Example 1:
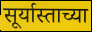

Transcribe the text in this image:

सूर्यास्ताच्या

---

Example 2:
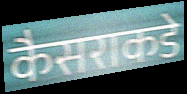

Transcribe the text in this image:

कैसराकडे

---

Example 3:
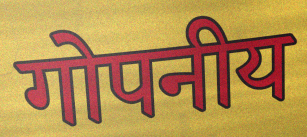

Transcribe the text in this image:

गोपनीय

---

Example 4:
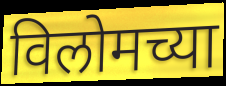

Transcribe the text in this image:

विलोमच्या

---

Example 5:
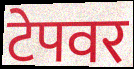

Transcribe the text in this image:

टेपवर